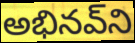
అభినవ్‌ని